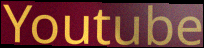
Youtube